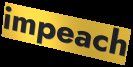
impeach